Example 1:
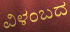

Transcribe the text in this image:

ವಿಳಂಬದ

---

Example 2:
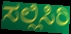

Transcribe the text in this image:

ಸಲ್ಲಿಸಿರಿ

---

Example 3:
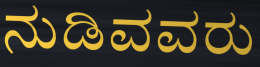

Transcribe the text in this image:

ನುಡಿವವರು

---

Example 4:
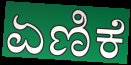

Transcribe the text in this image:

ಏಣಿಕೆ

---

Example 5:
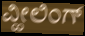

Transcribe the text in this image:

ವ್ಹೀಲಿಂಗ್